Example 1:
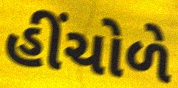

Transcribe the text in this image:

હીંચોળે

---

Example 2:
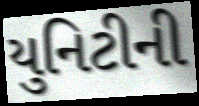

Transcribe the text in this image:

યુનિટીની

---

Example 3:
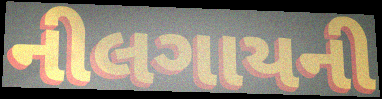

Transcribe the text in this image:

નીલગાયની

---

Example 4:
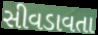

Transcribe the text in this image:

સીવડાવતા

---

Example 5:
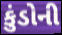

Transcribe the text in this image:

કુંડોની